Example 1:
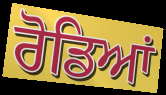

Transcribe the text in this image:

ਰੋਡਿਆਂ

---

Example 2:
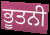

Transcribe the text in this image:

ਭੂਤਨੀ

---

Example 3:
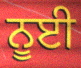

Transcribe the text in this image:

ਨੂਈ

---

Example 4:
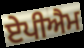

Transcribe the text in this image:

ਏਪੀਐਮ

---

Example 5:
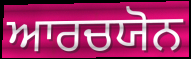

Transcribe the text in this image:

ਆਰਚਯੋਨ